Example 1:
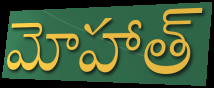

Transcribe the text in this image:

మోహాత్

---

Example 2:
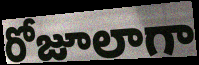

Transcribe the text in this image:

రోజూలాగా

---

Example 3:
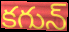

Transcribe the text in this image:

కగున్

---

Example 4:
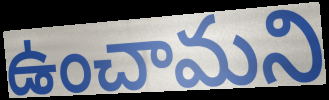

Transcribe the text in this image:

ఉంచామని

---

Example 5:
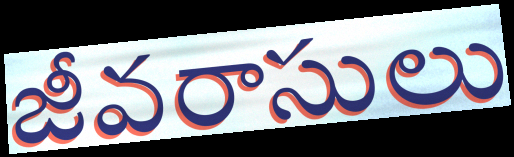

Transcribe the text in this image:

జీవరాసులు